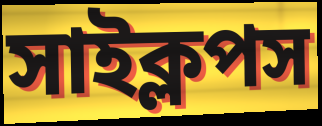
সাইক্লপস